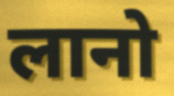
लानो